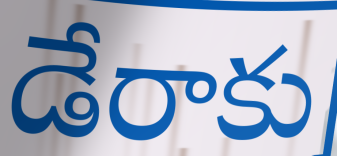
డేరాకు